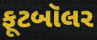
ફૂટબૉલર